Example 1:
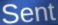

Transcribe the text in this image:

Sent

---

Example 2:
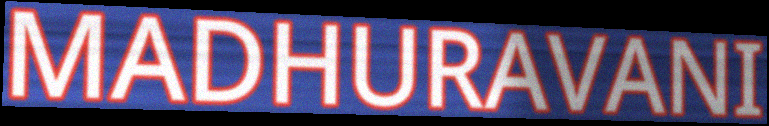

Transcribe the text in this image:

MADHURAVANI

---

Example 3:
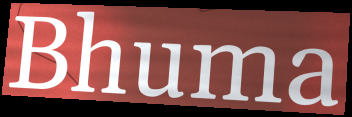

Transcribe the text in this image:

Bhuma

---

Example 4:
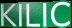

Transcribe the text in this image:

KILIC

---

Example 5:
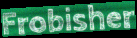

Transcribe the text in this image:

Frobisher